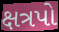
ક્ષત્રપો